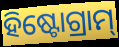
ହିଷ୍ଟୋଗ୍ରାମ୍